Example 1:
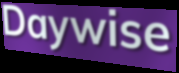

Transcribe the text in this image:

Daywise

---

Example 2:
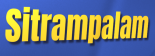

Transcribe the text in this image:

Sitrampalam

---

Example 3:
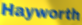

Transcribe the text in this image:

Hayworth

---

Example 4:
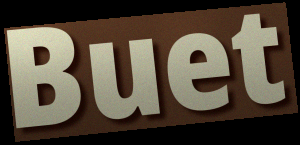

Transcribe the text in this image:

Buet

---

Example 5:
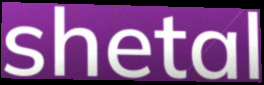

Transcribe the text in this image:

shetal